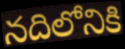
నదిలోనికి